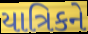
યાત્રિકને